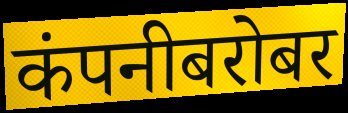
कंपनीबरोबर